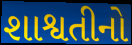
શાશ્વતીનો